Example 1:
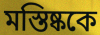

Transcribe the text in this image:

মস্তিষ্ককে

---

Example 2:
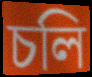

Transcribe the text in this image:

চলি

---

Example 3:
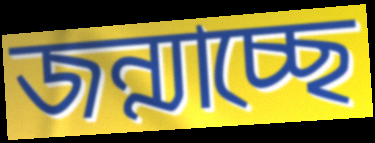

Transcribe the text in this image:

জন্মাচ্ছে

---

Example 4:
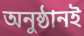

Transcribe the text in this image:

অনুষ্ঠানই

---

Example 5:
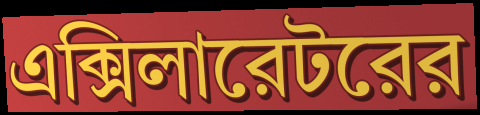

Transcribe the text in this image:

এক্সিলারেটরের